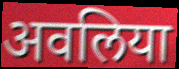
अवलिया